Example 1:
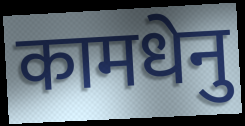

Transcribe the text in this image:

कामधेनु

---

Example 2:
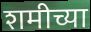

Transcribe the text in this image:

शमीच्या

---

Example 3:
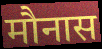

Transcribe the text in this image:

मौनास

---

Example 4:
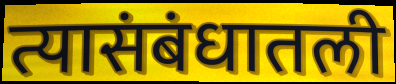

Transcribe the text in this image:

त्यासंबंधातली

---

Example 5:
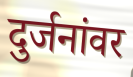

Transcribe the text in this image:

दुर्जनांवर